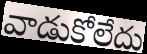
వాడుకోలేదు